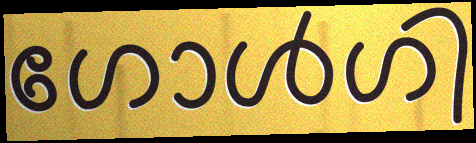
ഗോൾഗി